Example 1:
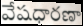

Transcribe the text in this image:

వేషధారణా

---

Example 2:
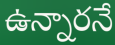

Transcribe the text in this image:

ఉన్నారనే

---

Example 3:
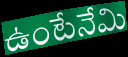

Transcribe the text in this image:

ఉంటేనేమి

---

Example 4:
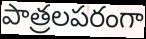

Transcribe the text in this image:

పాత్రలపరంగా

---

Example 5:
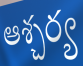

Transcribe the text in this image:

ఆశ్చర్య